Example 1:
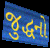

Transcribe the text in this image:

જુદ્ધનો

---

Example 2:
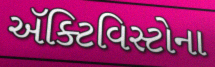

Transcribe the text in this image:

ઍક્ટિવિસ્ટોના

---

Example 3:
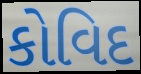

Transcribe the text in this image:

કોવિદ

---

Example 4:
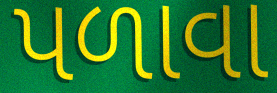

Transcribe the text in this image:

પળાવા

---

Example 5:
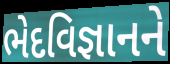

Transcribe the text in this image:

ભેદવિજ્ઞાનને